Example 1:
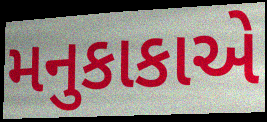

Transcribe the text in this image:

મનુકાકાએ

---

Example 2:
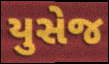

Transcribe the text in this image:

યુસેજ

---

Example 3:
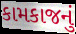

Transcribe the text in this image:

કામકાજનું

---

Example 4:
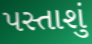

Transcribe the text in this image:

પસ્તાશું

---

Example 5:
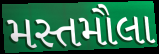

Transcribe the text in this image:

મસ્તમૌલા